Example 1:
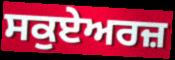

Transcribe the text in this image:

ਸਕੁਏਅਰਜ਼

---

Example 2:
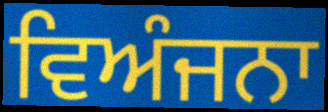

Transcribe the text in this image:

ਵਿਅੰਜਨਾ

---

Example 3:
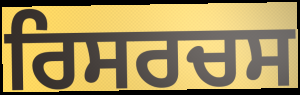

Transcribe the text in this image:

ਰਿਸਰਚਸ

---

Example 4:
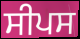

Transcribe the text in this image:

ਸੀਪਸ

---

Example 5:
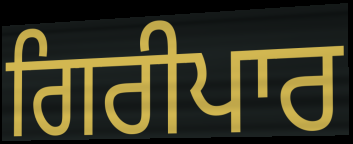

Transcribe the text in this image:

ਗਿਰੀਪਾਰ